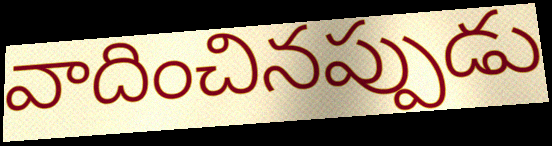
వాదించినప్పుడు